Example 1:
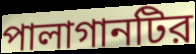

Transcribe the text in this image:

পালাগানটির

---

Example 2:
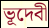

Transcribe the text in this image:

ভূদেবী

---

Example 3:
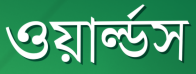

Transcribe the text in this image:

ওয়ার্ল্ডস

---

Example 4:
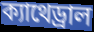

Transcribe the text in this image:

ক্যাথেড্রাল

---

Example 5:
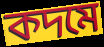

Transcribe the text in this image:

কদমে